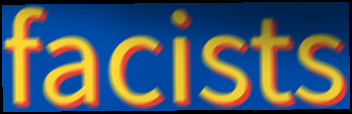
facists